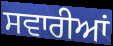
ਸਵਾਰੀਆਂ